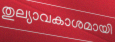
തുല്യാവകാശമായി